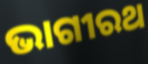
ଭାଗୀରଥ